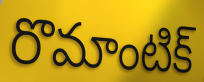
రొమాంటిక్